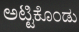
ಅಟ್ಟಿಕೊಂಡು